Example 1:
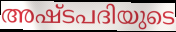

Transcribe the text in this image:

അഷ്ടപദിയുടെ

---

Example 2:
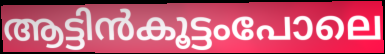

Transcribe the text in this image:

ആട്ടിൻകൂട്ടംപോലെ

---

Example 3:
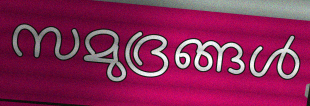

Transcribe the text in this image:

സമുദ്രങ്ങൾ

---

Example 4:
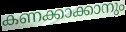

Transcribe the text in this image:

കണക്കാക്കാനും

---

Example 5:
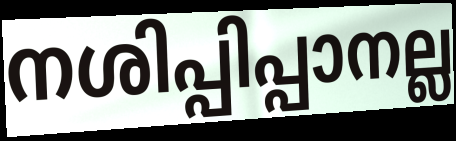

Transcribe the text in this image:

നശിപ്പിപ്പാനല്ല